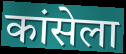
कांसेला